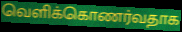
வெளிக்கொணர்வதாக